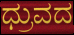
ಧ್ರುವದ